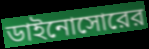
ডাইনোসোরের